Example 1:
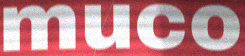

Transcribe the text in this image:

muco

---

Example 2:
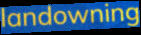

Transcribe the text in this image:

landowning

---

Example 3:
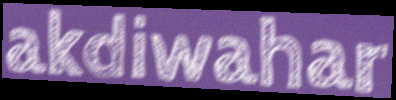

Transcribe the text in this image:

akdiwahar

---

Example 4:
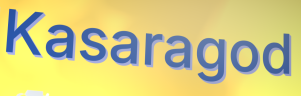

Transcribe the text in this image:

Kasaragod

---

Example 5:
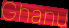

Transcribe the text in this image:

Ghanu